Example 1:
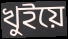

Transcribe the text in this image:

খুইয়ে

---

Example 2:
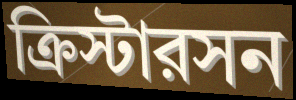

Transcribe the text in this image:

ক্রিস্টারসন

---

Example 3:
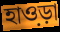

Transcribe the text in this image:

হাও়ড়া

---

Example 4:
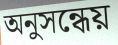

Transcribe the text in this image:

অনুসন্ধেয়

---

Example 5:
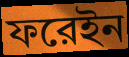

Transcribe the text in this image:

ফরেইন